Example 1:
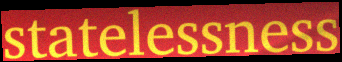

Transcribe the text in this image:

statelessness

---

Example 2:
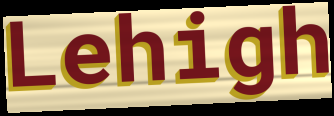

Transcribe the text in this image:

Lehigh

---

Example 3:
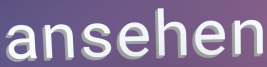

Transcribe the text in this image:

ansehen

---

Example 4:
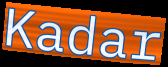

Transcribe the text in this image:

Kadar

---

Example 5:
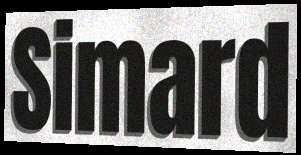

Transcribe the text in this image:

Simard